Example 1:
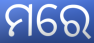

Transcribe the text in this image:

ମରେ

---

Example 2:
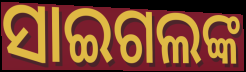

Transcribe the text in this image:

ସାଇଗଲଙ୍କ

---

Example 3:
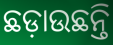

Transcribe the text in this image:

ଛଡ଼ାଉଛନ୍ତି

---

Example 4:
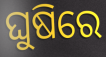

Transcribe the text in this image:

ଘୁଷିରେ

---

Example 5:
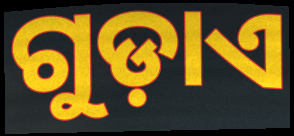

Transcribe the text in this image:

ଗୁଡ଼ାଏ